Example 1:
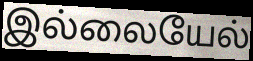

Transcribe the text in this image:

இல்லையேல்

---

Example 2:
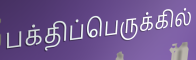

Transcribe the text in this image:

பக்திப்பெருக்கில்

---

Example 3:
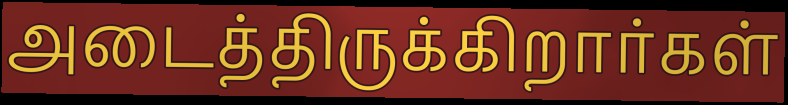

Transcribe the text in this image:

அடைத்திருக்கிறார்கள்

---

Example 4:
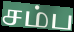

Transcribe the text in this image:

சம்ப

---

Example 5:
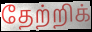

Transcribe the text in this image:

தேற்றிக்